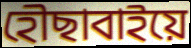
হৌছাবাইয়ে